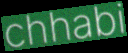
chhabi